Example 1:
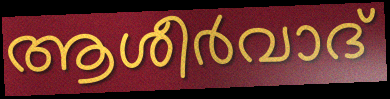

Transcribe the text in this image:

ആശീർവാദ്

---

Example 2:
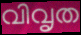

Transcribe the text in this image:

വിവൃത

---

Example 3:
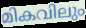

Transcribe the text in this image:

മികവിലും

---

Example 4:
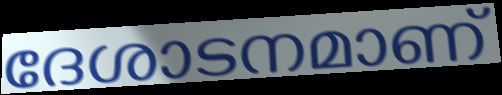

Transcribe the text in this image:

ദേശാടനമാണ്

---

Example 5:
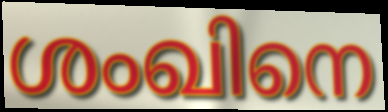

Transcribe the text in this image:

ശംഖിനെ